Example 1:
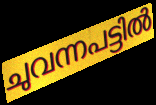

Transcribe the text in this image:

ചുവന്നപട്ടിൽ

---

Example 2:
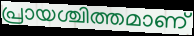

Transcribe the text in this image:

പ്രായശ്ചിത്തമാണ്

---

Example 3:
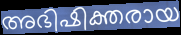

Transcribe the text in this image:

അഭിഷിക്തരായ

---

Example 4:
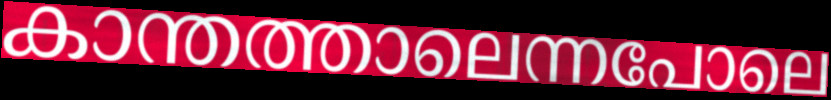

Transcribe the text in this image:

കാന്തത്താലെന്നപോലെ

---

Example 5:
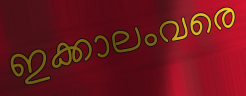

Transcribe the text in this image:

ഇക്കാലംവരെ